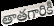
తాతగారికీ